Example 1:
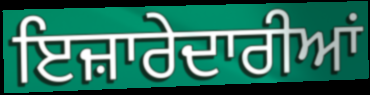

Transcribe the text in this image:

ਇਜ਼ਾਰੇਦਾਰੀਆਂ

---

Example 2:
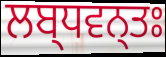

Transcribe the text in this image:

ਲਬ੍ਧਵਨ੍ਤਃ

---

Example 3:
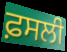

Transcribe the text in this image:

ਫ਼ਸਲੀ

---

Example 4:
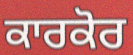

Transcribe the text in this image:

ਕਾਰਕੋਰ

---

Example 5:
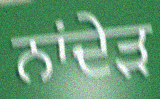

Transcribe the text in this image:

ਨਾਂਦੇੜ